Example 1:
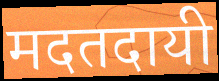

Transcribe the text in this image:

मदतदायी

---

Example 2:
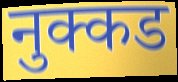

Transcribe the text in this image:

नुक्कड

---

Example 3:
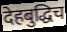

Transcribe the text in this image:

देहबुद्धिच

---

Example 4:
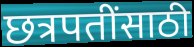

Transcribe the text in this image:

छत्रपतींसाठी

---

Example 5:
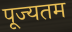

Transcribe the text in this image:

पूज्यतम